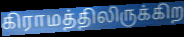
கிராமத்திலிருக்கிற